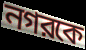
নগরকে